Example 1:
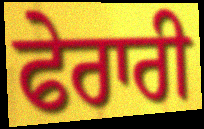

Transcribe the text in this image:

ਫੇਰਾਰੀ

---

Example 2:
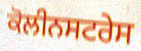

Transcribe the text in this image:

ਕੋਲੀਨਸਟਰੇਸ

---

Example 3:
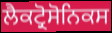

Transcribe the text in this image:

ਲੈਕਟ੍ਰੋਸੋਨਿਕਸ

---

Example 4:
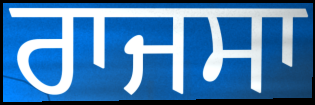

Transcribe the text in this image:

ਰਾਜਸਾ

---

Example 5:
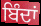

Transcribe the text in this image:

ਬਿੰਦਾਂ